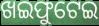
ଖଇଫୁଟେଇ